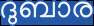
ദുബാര